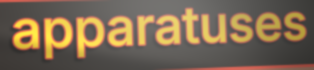
apparatuses